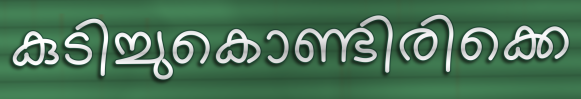
കുടിച്ചുകൊണ്ടിരിക്കെ